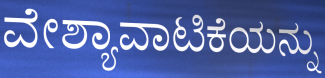
ವೇಶ್ಯಾವಾಟಿಕೆಯನ್ನು